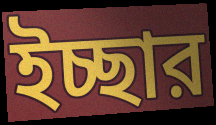
ইচ্ছার